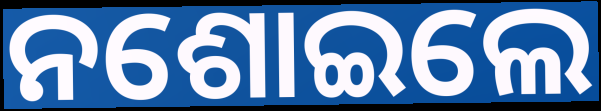
ନଶୋଇଲେ